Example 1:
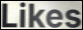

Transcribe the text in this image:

Likes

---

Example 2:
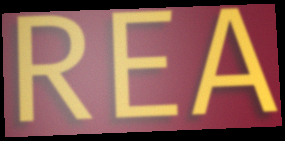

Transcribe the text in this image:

REA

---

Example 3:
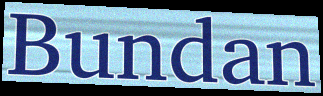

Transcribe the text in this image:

Bundan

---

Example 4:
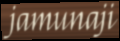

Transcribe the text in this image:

jamunaji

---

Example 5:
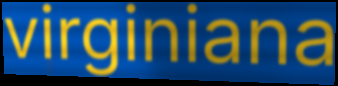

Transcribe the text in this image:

virginiana